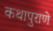
कथापुराणे